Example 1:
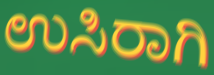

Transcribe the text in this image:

ಉಸಿರಾಗಿ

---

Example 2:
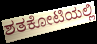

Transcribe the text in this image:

ಶತಕೋಟಿಯಲ್ಲಿ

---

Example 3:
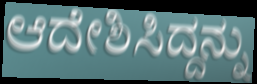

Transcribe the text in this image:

ಆದೇಶಿಸಿದ್ದನ್ನು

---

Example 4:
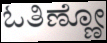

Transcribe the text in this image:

ಓತಿಣ್ಣೋ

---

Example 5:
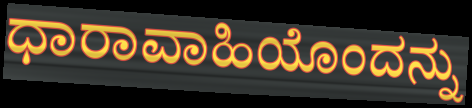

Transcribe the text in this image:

ಧಾರಾವಾಹಿಯೊಂದನ್ನು